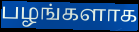
பழங்களாக